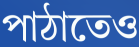
পাঠাতেও